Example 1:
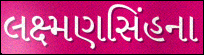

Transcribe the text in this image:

લક્ષ્મણસિંહના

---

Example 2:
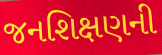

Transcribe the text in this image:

જનશિક્ષણની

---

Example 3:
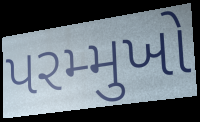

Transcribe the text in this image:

પરમ્મુખો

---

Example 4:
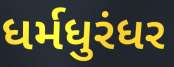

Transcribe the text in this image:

ધર્મધુરંધર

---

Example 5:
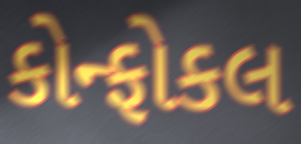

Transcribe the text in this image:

કોન્ફોકલ